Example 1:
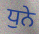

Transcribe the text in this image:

ਧੁਨੇ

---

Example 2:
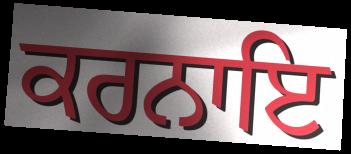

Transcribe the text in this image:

ਕਰਨਾਇ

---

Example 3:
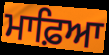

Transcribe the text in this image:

ਮਾਫ਼ਿਆ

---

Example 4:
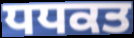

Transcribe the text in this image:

ਧਧਕਤ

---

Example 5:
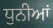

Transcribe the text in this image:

ਧੁਨੀਆਂ